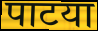
पाटया